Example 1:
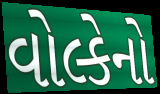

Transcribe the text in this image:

વોલ્કેનો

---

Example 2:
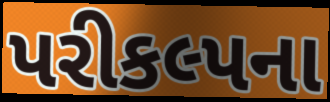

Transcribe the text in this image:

પરીકલ્પના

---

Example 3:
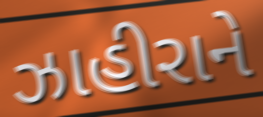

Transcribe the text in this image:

ઝાહીરાને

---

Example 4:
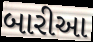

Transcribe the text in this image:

બારીઆ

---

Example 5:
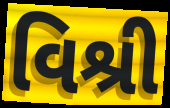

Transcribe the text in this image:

વિશ્રી